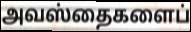
அவஸ்தைகளைப்